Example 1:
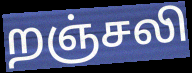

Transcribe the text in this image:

றஞ்சலி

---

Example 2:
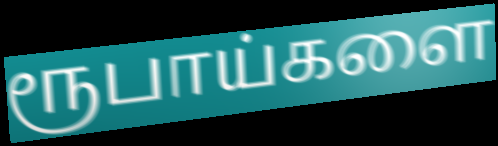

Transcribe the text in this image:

ரூபாய்களை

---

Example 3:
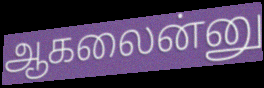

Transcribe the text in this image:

ஆகலைன்னு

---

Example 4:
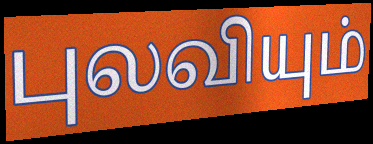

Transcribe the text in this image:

புலவியும்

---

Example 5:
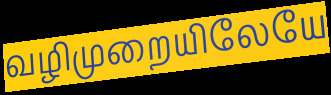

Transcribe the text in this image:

வழிமுறையிலேயே